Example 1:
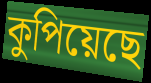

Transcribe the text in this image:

কুপিয়েছে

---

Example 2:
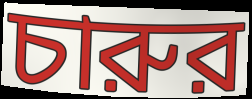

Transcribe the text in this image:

চারুর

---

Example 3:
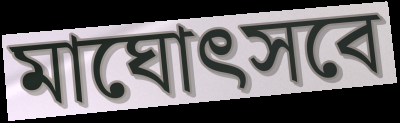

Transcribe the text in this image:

মাঘোৎসবে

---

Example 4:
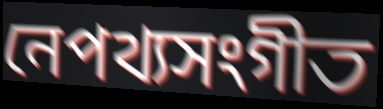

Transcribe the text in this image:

নেপথ্যসংগীত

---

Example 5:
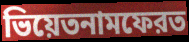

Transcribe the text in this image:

ভিয়েতনামফেরত